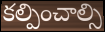
కల్పించాల్సి